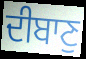
ਦੀਬਾਣੁ